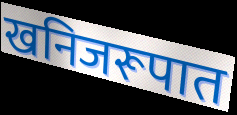
खनिजरूपात